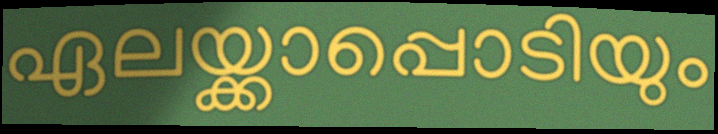
ഏലയ്ക്കാപ്പൊടിയും